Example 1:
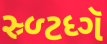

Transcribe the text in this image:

સ્ર્ળ્ટધ્ગૅ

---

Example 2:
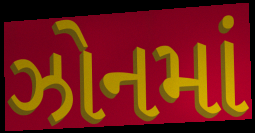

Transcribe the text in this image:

ઝોનમાં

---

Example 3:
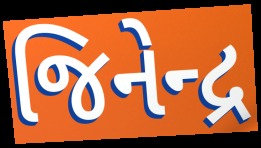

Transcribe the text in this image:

જિનેન્દ્ર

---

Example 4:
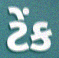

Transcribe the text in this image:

ટેંક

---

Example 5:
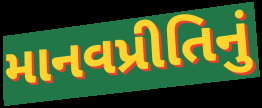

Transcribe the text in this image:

માનવપ્રીતિનું